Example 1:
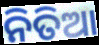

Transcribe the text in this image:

ନିତିଆ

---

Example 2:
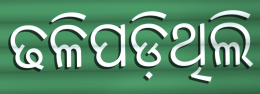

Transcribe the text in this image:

ଢଳିପଡ଼ିଥିଲି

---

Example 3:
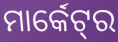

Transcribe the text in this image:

ମାର୍କେଟ୍‌ର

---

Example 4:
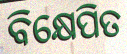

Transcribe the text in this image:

ବିକ୍ଷେପିତ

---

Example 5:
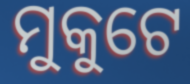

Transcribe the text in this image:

ମୁକୁଟେ